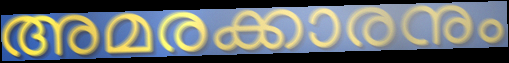
അമരക്കാരനും